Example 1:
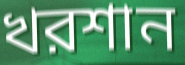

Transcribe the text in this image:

খরশান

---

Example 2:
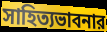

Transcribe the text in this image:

সাহিত্যভাবনার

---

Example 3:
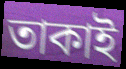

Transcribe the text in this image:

তাকাই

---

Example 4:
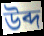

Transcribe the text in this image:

উব্দ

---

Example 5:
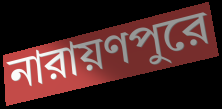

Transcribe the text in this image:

নারায়ণপুরে